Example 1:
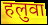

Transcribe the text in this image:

हलुवा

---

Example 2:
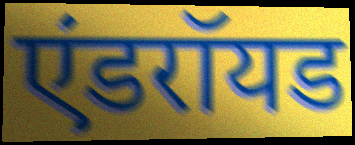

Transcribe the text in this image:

एंडरॉयड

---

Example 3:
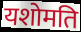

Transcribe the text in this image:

यशोमति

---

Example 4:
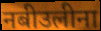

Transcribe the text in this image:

नबीउलीना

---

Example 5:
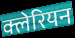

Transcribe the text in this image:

क्लेरियन